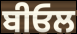
ਬੀਓਲ